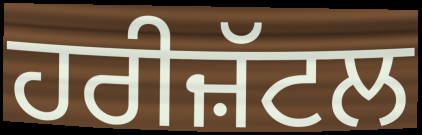
ਹਰੀਜ਼ੱਟਲ